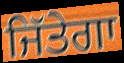
ਜਿੱਤੇਗਾ